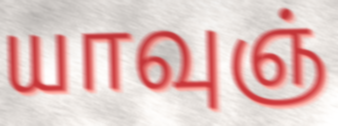
யாவுஞ்